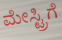
ಮೇಸ್ಟ್ರಿಗೆ